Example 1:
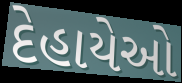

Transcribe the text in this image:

દેહાયેઓ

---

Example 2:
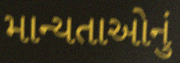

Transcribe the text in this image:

માન્યતાઓનું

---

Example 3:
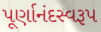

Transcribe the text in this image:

પૂર્ણાનંદસ્વરૂપ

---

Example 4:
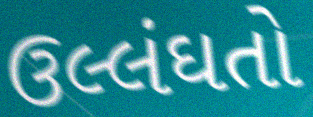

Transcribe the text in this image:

ઉલ્લંઘતો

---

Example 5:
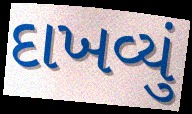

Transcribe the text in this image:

દાખવ્યું